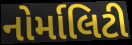
નોર્માલિટી